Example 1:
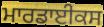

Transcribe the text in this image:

ਮਾਰਡਾਈਕਸ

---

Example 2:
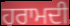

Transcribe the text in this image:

ਹਰਾਮਦੀ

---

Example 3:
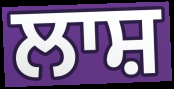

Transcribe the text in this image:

ਲਾਸ਼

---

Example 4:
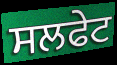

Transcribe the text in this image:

ਸਲਫੇਟ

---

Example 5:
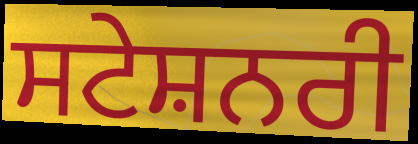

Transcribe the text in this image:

ਸਟੇਸ਼ਨਰੀ